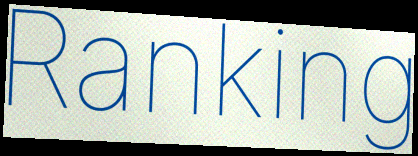
Ranking